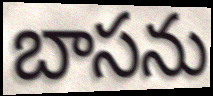
బాసను